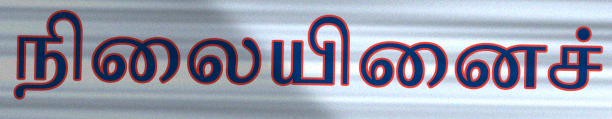
நிலையினைச்